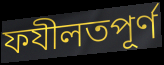
ফযীলতপূর্ণ